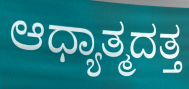
ಆಧ್ಯಾತ್ಮದತ್ತ